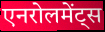
एनरोलमेंट्स